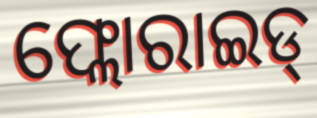
ଫ୍ଲୋରାଇଡ୍